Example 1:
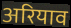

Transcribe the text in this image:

अरियाव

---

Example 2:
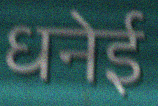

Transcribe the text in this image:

धनेई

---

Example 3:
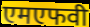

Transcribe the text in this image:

एमएफवी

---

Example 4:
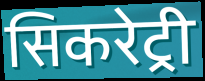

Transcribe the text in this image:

सिकरेट्री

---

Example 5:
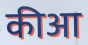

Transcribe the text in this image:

कीआ